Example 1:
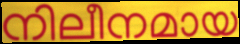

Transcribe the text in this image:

നിലീനമായ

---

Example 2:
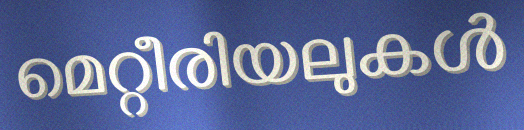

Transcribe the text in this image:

മെറ്റീരിയലുകൾ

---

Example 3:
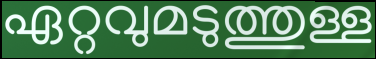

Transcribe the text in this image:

ഏറ്റവുമടുത്തുള്ള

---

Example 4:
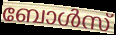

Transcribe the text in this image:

ബോൾസ്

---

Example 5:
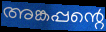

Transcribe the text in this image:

അങ്കപ്പന്റെ